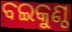
ବଇକୁଣ୍ଠ